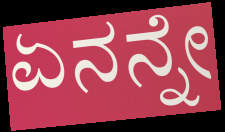
ಏನನ್ನೇ